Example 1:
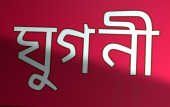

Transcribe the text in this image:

ঘুগনী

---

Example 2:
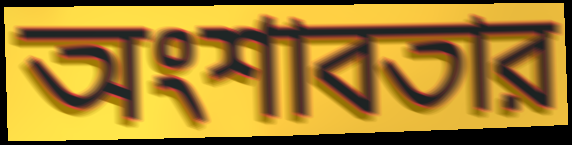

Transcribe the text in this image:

অংশাবতার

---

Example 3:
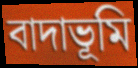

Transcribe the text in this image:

বাদাভূমি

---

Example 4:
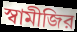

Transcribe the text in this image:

স্বামীজির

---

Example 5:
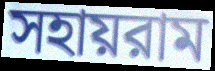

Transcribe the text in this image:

সহায়রাম